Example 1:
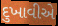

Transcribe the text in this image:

દુખાવીએ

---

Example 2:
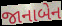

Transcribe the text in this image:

જાનાબેન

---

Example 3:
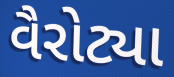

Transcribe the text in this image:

વૈરોટ્યા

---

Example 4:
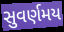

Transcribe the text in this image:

સુવર્ણમય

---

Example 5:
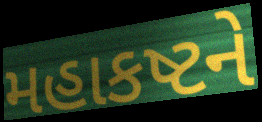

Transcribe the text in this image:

મહાકષ્ટને